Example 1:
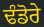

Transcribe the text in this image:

ਢੰਡੋਰੇ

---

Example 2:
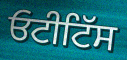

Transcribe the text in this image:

ਓਟੀਟਿੱਸ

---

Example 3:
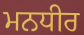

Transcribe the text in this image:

ਮਨਧੀਰ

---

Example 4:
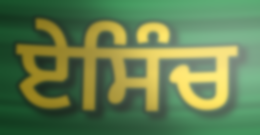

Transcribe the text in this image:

ਏਸਿੰਚ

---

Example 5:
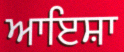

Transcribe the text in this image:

ਆਇਸ਼ਾ